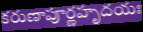
కరుణాపూర్ణహృదయః